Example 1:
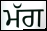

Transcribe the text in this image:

ਮੱਗ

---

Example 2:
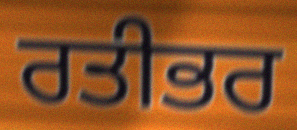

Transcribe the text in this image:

ਰਤੀਭਰ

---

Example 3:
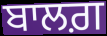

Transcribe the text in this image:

ਬਾਲਗ਼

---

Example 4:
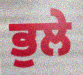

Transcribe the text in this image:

ਭੁਲੇ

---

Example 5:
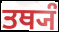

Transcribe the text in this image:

ਤਥ੍ਯੰ